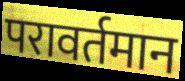
परावर्तमान